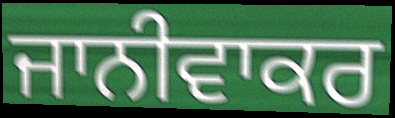
ਜਾਨੀਵਾਕਰ